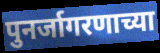
पुनर्जागरणाच्या